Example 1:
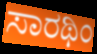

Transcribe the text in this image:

ಸಾರಥಿಂ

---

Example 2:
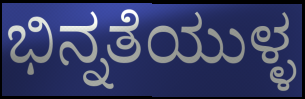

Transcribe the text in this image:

ಭಿನ್ನತೆಯುಳ್ಳ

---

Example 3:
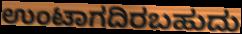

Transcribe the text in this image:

ಉಂಟಾಗದಿರಬಹುದು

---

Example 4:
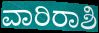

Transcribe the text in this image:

ವಾರಿರಾಶಿ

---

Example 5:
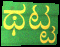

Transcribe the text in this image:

ಥಟ್ಟ